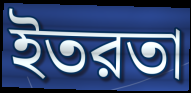
ইতরতা